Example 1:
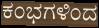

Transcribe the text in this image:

ಕಂಭಗಳಿಂದ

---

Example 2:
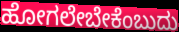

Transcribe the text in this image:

ಹೋಗಲೇಬೇಕೆಂಬುದು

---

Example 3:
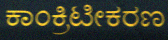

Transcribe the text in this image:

ಕಾಂಕ್ರಿಟೀಕರಣ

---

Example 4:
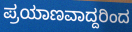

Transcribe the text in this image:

ಪ್ರಯಾಣವಾದ್ದರಿಂದ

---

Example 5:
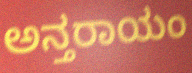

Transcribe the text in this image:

ಅನ್ತರಾಯಂ